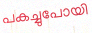
പകച്ചുപോയി